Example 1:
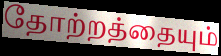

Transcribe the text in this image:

தோற்றத்தையும்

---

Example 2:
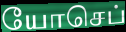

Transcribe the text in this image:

யோசெப்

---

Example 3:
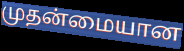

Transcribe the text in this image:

முதன்மையான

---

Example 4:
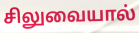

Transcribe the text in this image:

சிலுவையால்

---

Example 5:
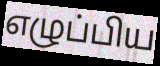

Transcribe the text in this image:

எழுப்பிய